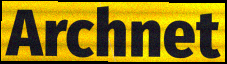
Archnet